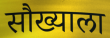
सौख्याला